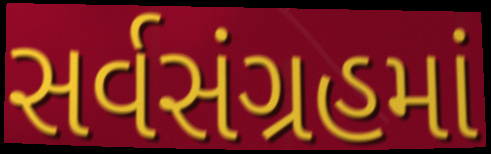
સર્વસંગ્રહમાં